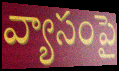
వ్యాసంపై